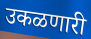
उकळणारी